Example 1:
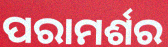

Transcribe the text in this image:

ପରାମର୍ଶର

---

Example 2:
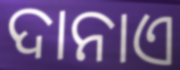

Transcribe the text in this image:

ଦାନାଏ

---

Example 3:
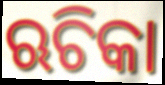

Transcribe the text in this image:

ଋଚିକା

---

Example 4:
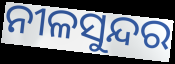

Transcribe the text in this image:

ନୀଳସୁନ୍ଦର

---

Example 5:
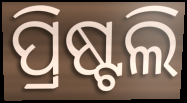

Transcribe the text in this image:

ପ୍ରିଷ୍ଟଲି